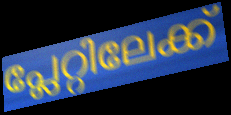
പ്ലേറ്റിലേക്ക്